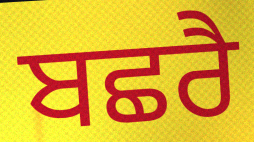
ਬਛਰੈ